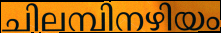
ചിലമ്പിനഴിയം